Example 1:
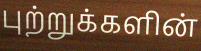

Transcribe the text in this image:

புற்றுக்களின்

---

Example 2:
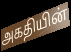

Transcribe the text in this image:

அகதியின்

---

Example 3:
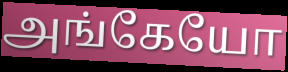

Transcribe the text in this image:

அங்கேயோ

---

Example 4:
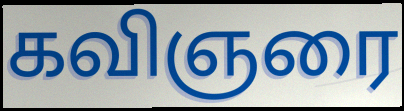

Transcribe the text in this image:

கவிஞரை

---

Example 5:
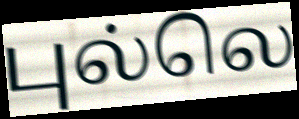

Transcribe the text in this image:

புல்லெ